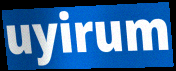
uyirum